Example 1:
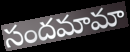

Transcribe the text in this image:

సందమామా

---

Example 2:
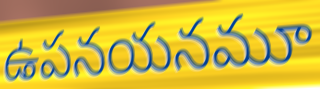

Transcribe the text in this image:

ఉపనయనమూ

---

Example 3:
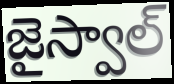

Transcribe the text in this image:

జైస్వాల్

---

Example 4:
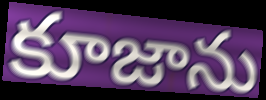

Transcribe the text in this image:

కూజాను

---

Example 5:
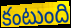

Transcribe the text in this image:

కంటుంది